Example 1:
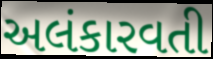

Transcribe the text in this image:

અલંકારવતી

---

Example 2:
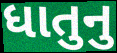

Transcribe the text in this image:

ધાતુનુ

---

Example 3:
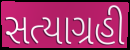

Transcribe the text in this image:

સત્યાગ્રહી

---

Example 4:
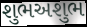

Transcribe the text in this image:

શુભઅશુભ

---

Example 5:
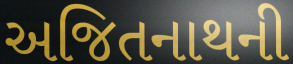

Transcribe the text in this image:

અજિતનાથની